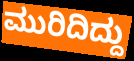
ಮುರಿದಿದ್ದು